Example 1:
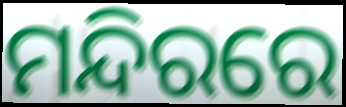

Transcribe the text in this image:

ମନ୍ଦିରରେ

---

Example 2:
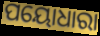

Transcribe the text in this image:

ପୟୋଧାରା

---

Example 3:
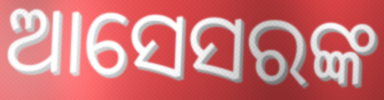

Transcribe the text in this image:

ଆସେସରଙ୍କ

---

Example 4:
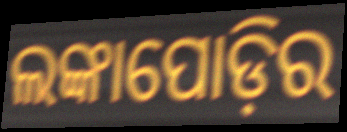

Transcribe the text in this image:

ଲଙ୍କାପୋଡ଼ିର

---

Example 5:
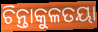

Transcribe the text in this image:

ଚିନ୍ତାକୁଳତୟା